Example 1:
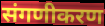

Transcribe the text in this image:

संगणीकरण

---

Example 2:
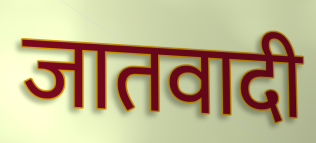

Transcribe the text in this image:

जातवादी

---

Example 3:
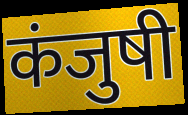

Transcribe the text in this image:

कंजुषी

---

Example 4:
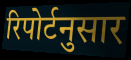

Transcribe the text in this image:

रिपोर्टनुसार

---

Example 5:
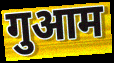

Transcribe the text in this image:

गुआम